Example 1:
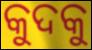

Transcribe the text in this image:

କୁଦକୁ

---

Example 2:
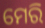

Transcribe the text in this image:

ମେରି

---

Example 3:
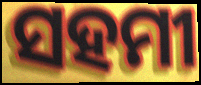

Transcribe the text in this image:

ସହମୀ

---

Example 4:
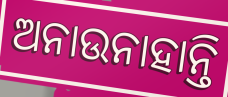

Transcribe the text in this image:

ଅନାଉନାହାନ୍ତି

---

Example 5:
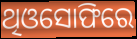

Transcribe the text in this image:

ଥିଓସୋଫିରେ